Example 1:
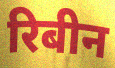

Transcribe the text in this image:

रिबीन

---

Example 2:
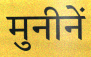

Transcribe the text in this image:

मुनीनें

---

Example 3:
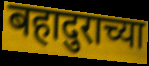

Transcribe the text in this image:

बहादुराच्या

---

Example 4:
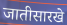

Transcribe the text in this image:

जातीसारखे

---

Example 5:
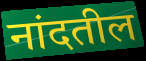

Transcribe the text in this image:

नांदतील